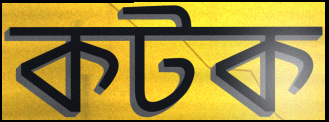
কটক